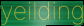
yeilding